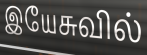
இயேசுவில்